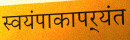
स्वयंपाकापर्यंत